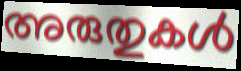
അരുതുകൾ